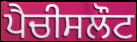
ਪੈਚੀਸਲੌਟ